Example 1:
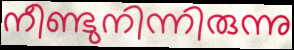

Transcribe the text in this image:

നീണ്ടുനിന്നിരുന്നു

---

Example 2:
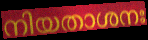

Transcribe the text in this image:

നിയതാശനഃ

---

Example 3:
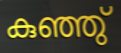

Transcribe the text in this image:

കുഞ്ഞു്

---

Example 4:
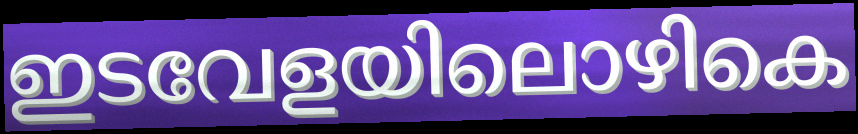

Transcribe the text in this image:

ഇടവേളയിലൊഴികെ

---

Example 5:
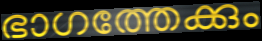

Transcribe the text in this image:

ഭാഗത്തേക്കും